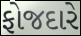
ફોજદારે